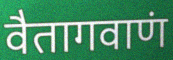
वैतागवाणं